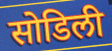
सोडिली